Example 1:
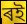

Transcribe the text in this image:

ৰই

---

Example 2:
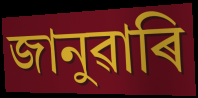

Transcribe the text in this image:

জানুৱাৰি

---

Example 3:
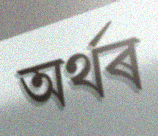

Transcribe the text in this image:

অৰ্থৰ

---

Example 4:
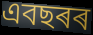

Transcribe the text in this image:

এবছৰৰ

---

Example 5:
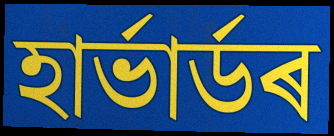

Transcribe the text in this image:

হাৰ্ভাৰ্ডৰ